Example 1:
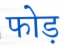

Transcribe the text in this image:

फोड़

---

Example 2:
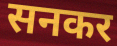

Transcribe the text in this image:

सनकर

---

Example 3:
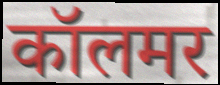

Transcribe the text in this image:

कॉलमर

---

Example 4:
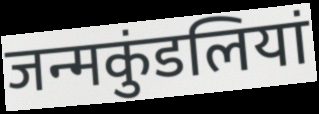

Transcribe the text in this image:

जन्मकुंडलियां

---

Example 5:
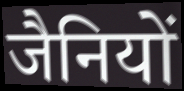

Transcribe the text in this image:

जैनियों